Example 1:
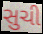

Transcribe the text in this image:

સુચી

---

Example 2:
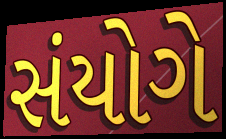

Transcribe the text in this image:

સંયોગે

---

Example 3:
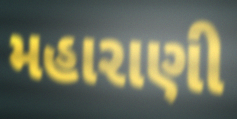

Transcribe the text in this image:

મહારાણી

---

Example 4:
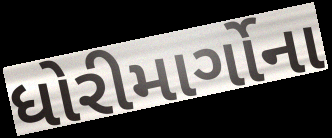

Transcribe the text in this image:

ધોરીમાર્ગોના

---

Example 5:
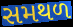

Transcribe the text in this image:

સમથળ